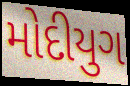
મોદીયુગ